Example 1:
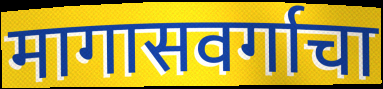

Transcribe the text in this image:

मागासवर्गाचा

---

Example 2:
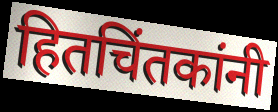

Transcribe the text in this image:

हितचिंतकांनी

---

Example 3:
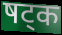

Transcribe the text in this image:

षट्क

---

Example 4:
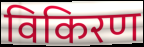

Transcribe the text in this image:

विकिरण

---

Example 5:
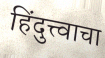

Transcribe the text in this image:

हिंदुत्त्वाचा